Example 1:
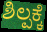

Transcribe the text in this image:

ಶಿಲ್ಪಕ್ಕೆ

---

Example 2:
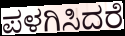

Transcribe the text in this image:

ಪಳಗಿಸಿದರೆ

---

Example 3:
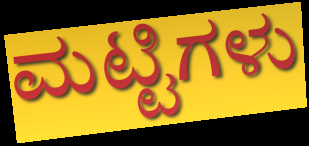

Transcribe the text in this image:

ಮಟ್ಟಿಗಳು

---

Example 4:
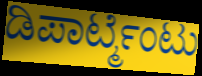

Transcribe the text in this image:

ಡಿಪಾರ್ಟ್ಮೆಂಟು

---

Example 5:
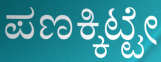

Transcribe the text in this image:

ಪಣಕ್ಕಿಟ್ಟೇ